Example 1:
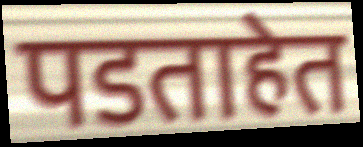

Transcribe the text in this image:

पडताहेत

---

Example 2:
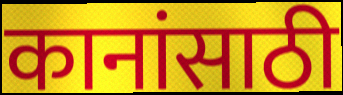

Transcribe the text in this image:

कानांसाठी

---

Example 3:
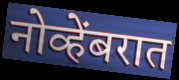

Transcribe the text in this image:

नोव्हेंबरात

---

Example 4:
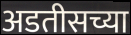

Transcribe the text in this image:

अडतीसच्या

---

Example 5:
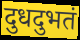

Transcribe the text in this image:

दुधदुभतं